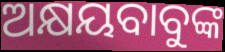
ଅକ୍ଷୟବାବୁଙ୍କ